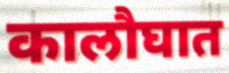
कालौघात